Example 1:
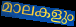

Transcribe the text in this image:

മാലകളും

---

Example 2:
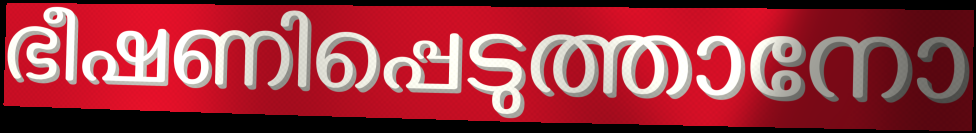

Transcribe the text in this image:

ഭീഷണിപ്പെടുത്താനോ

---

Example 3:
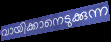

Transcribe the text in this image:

വായിക്കാനെടുക്കുന്ന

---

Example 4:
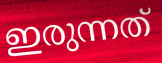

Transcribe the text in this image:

ഇരുന്നത്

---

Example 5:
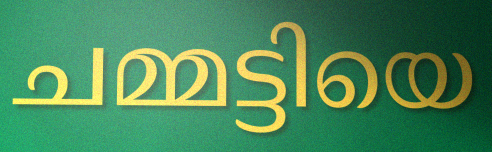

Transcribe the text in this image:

ചമ്മട്ടിയെ